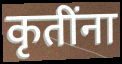
कृतींना